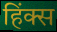
हिंक्स